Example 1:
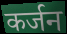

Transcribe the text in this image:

कर्जन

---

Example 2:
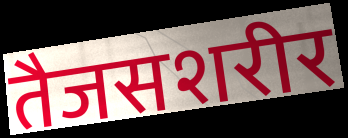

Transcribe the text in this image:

तैजसशरीर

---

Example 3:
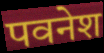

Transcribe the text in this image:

पवनेश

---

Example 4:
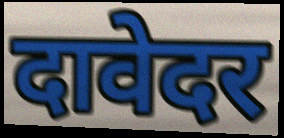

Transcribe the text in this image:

दावेदर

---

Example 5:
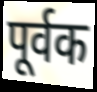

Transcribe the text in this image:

पूर्वक